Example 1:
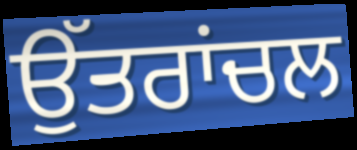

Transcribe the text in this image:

ਉੱਤਰਾਂਚਲ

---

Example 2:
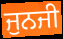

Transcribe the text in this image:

ਜੁਨਜੀ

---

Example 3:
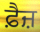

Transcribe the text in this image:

ਫ਼ੈਜ਼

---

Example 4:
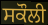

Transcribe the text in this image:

ਸਕੌਲੀ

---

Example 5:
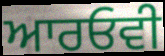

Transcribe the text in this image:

ਆਰਓਵੀ